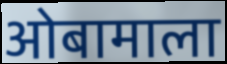
ओबामाला